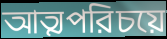
আত্মপরিচয়ে